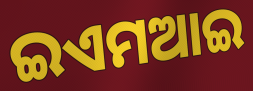
ଇଏମଆଇ